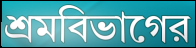
শ্রমবিভাগের